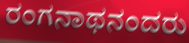
ರಂಗನಾಥನಂದರು